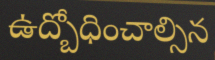
ఉద్బోధించాల్సిన